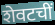
शेवटचीं